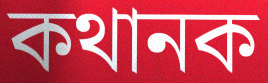
কথানক